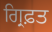
ਗ੍ਰਿਫ਼ਤ